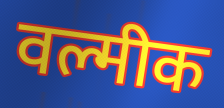
वल्मीक